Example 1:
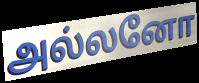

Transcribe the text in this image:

அல்லனோ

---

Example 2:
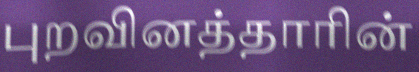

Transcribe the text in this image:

புறவினத்தாரின்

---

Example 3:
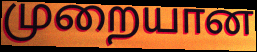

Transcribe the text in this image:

முறையான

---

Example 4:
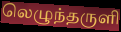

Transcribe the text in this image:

லெழுந்தருளி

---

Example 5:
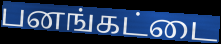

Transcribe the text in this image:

பனங்கட்டை